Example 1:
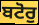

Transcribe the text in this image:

ਬਟੋਰੁ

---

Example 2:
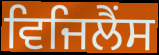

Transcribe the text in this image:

ਵਿਜਿਲੈਂਸ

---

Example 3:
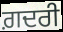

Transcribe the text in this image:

ਗ਼ਦਰੀ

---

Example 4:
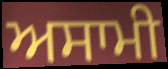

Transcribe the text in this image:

ਅਸਾਮੀ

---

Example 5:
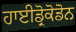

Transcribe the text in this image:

ਹਾਈਡ੍ਰੋਕੋਡੋਨ